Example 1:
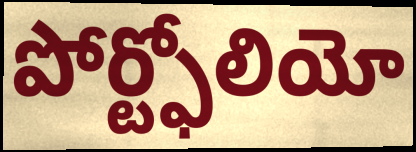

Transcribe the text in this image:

పోర్ట్ఫోలియో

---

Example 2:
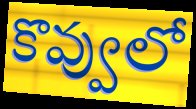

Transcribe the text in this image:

కొవ్వులో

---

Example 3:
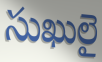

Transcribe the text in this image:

సుఖులై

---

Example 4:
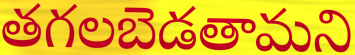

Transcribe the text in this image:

తగలబెడతామని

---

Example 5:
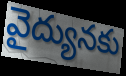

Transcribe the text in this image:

వైద్యునకు